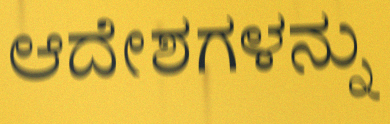
ಆದೇಶಗಳನ್ನು